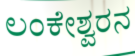
ಲಂಕೇಶ್ವರನ